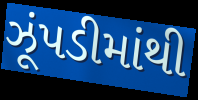
ઝૂંપડીમાંથી